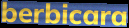
berbicara